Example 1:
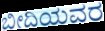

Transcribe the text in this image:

ಬೀದಿಯವರ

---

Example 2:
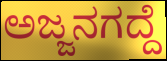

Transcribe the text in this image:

ಅಜ್ಜನಗದ್ದೆ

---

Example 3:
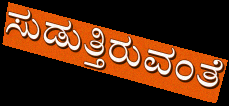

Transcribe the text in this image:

ಸುಡುತ್ತಿರುವಂತೆ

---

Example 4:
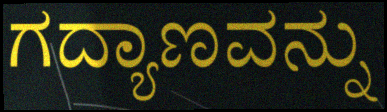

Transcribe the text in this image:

ಗದ್ಯಾಣವನ್ನು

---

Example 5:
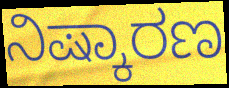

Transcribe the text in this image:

ನಿಷ್ಕಾರಣ